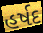
હર્ષદ